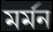
মর্মন